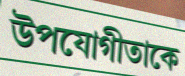
উপযোগীতাকে